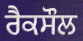
ਰੈਕਸੌਲ